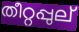
തീറ്റപ്പുല്